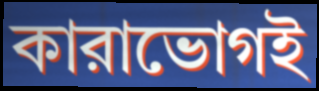
কারাভোগই